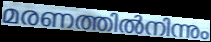
മരണത്തിൽനിന്നും